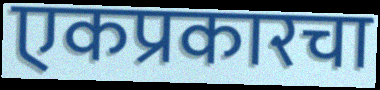
एकप्रकारचा